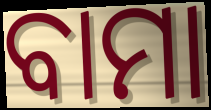
ବାମା